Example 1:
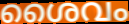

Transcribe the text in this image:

ശൈവം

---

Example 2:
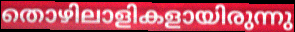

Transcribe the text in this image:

തൊഴിലാളികളായിരുന്നു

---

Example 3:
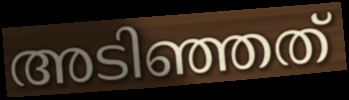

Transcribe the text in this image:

അടിഞ്ഞത്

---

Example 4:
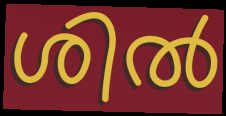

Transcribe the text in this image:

ശിൽ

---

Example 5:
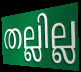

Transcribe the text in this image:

തല്ലില്ല